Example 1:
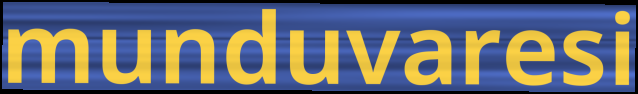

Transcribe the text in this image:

munduvaresi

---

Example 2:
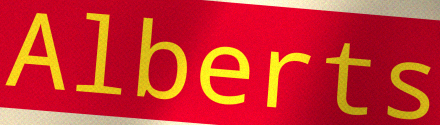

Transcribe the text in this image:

Alberts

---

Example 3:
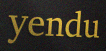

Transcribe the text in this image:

yendu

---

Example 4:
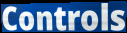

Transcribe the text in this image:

Controls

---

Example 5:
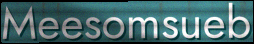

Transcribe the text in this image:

Meesomsueb